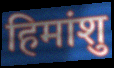
हिमांशु